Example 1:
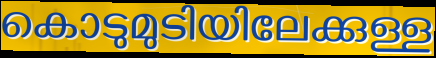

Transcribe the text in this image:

കൊടുമുടിയിലേക്കുള്ള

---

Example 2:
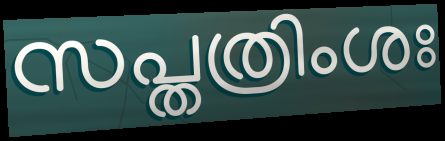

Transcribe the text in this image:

സപ്തത്രിംശഃ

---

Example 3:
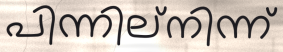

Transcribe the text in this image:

പിന്നില്നിന്ന്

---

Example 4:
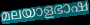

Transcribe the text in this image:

മലയാളഭാഷ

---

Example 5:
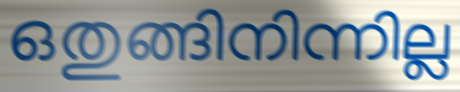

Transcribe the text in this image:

ഒതുങ്ങിനിന്നില്ല